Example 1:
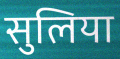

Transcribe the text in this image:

सुलिया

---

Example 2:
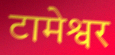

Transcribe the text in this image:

टामेश्वर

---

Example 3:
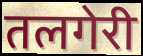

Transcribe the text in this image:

तलगेरी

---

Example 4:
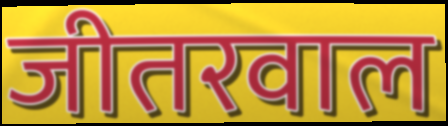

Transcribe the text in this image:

जीतरवाल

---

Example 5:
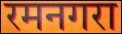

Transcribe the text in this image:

रमनगरा